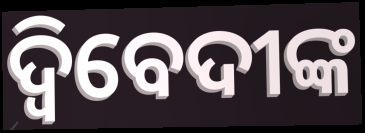
ଦ୍ବିବେଦୀଙ୍କ